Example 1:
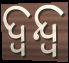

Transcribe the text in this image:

ଦ୍ବନ୍ଦ୍ବ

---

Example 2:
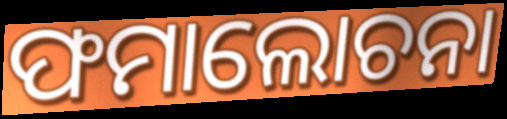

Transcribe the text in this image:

ଫମାଲୋଚନା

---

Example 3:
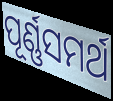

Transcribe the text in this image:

ପୂର୍ଣ୍ଣସମର୍ଥ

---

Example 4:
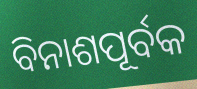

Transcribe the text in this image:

ବିନାଶପୂର୍ବକ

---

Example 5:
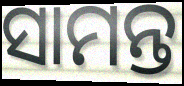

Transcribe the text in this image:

ସାମନ୍ତ